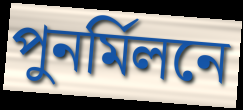
পুনর্মিলনে